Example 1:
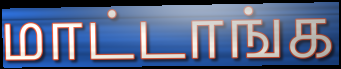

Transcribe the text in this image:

மாட்டாங்க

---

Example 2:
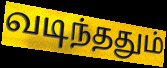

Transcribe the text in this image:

வடிந்ததும்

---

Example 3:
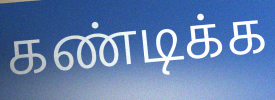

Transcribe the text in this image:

கண்டிக்க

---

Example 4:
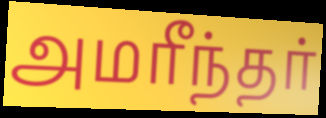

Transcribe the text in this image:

அமரீந்தர்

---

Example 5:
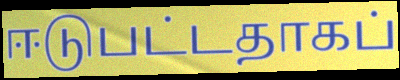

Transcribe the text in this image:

ஈடுபட்டதாகப்